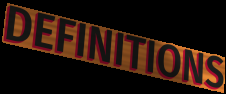
DEFINITIONS